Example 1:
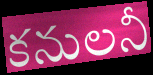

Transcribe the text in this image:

కనులనీ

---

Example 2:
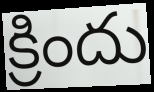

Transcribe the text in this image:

క్రిందు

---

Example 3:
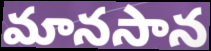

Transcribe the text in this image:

మానసాన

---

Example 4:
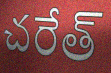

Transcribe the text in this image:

చరేత్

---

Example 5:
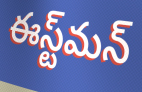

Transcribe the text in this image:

ఈస్ట్‌మన్